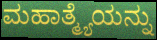
ಮಹಾತ್ಮ್ಯೆಯನ್ನು